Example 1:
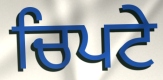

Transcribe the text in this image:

ਚਿਪਟੇ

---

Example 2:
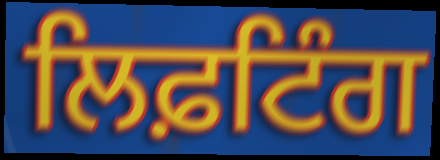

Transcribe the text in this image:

ਲਿਫ਼ਟਿੰਗ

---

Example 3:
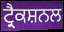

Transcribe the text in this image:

ਟ੍ਰੈਕਸ਼ਨਲ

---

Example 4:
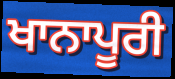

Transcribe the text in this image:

ਖਾਨਾਪੂਰੀ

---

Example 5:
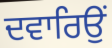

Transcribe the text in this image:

ਦਵਾਰਿਉਂ